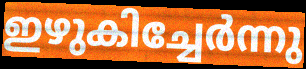
ഇഴുകിച്ചേർന്നു